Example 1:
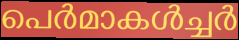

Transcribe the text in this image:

പെർമാകൾച്ചർ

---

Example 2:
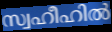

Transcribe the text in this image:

സ്വഹീഹിൽ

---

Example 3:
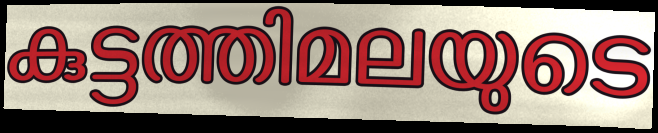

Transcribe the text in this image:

കുട്ടത്തിമലയുടെ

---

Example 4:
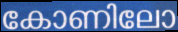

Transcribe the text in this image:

കോണിലോ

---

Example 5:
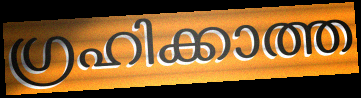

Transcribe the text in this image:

ഗ്രഹിക്കാത്ത